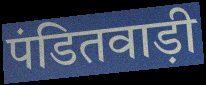
पंडितवाड़ी